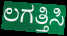
ಲಗತ್ತಿಸಿ